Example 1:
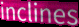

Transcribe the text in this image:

inclines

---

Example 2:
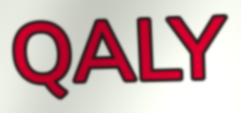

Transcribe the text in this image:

QALY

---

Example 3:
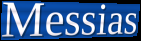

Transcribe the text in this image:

Messias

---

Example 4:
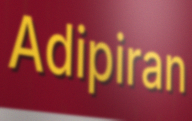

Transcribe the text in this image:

Adipiran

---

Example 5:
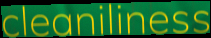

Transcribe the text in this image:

cleaniliness